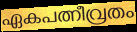
ഏകപത്നീവ്രതം